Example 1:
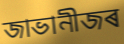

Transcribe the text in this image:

জাভানীজৰ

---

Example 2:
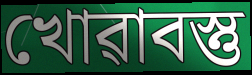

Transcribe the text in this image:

খোৱাবস্তু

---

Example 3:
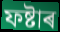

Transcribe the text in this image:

ফষ্টাৰ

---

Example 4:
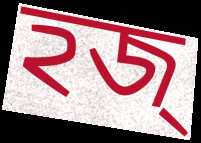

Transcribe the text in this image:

হজ্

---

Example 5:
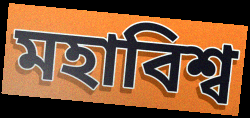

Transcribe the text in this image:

মহাবিশ্ব